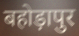
बहोड़ापुर